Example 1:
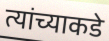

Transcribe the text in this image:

त्यांच्याकडे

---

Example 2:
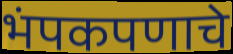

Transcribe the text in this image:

भंपकपणाचे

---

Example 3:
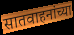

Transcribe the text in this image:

सातवाहनांच्या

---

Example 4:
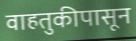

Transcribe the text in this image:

वाहतुकीपासून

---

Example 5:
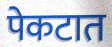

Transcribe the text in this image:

पेकटात